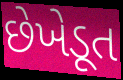
છેખેડૂત